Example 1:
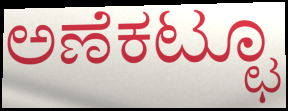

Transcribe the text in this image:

ಅಣೆಕಟ್ಟೂ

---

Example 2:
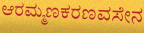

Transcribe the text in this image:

ಆರಮ್ಮಣಕರಣವಸೇನ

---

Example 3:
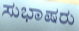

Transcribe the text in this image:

ಸುಭಾಷರು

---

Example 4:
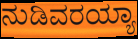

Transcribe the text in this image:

ನುಡಿವರಯ್ಯಾ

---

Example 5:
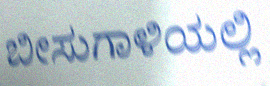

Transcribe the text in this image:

ಬೀಸುಗಾಳಿಯಲ್ಲಿ